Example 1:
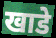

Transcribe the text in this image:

खाडे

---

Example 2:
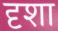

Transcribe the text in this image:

दृशा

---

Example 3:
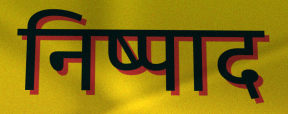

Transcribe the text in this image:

निष्पाद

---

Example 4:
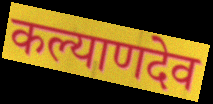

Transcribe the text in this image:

कल्याणदेव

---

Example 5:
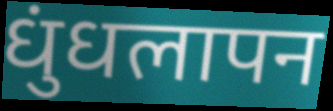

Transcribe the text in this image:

धुंधलापन